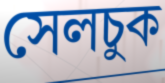
সেলচুক